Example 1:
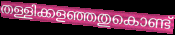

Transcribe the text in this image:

തള്ളിക്കളഞ്ഞതുകൊണ്ട്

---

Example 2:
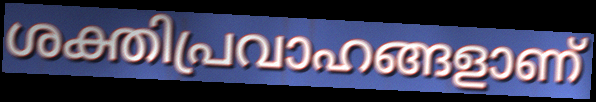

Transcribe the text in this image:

ശക്തിപ്രവാഹങ്ങളാണ്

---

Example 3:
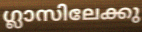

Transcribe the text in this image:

ഗ്ലാസിലേക്കു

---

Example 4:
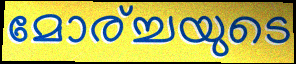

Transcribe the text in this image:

മോര്ച്ചയുടെ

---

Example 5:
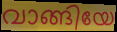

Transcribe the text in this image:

വാങ്ങിയേ